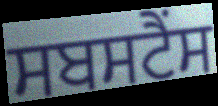
ਸਬਸਟੈਂਸ